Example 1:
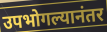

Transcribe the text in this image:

उपभोगल्यानंतर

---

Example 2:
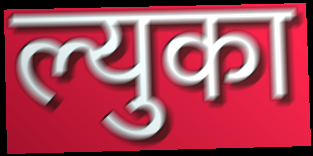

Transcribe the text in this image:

ल्युका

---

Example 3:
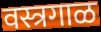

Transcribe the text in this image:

वस्त्रगाळ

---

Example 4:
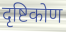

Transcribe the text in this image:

दृष्टिकोण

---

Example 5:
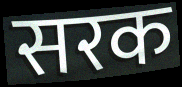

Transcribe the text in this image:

सरक